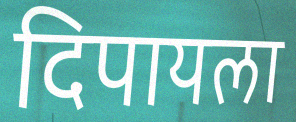
दिपायला